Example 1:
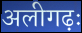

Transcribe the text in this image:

अलीगढ़ः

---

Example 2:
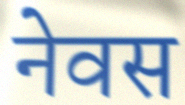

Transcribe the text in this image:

नेवस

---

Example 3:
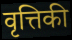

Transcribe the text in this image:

वृत्तिकी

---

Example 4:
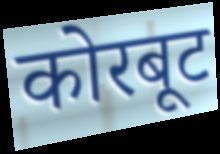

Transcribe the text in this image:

कोरबूट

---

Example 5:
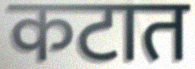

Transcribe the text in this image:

कटात